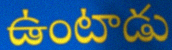
ఉంటాడు